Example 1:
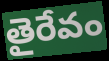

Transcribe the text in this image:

తైరేవం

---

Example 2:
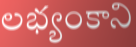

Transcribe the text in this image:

లభ్యంకాని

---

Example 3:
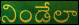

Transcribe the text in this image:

నిండేలా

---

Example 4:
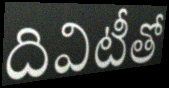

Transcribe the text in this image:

దివిటీతో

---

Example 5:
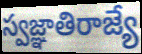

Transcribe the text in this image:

స్వజ్ఞాతిరాజ్యే